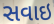
સવાઇ